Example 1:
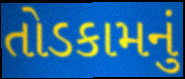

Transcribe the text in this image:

તોડકામનું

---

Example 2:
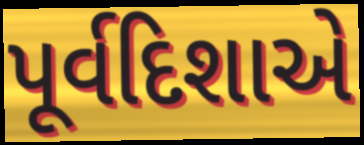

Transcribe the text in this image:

પૂર્વદિશાએ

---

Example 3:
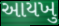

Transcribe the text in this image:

આયખુ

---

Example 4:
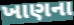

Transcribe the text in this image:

ખાણના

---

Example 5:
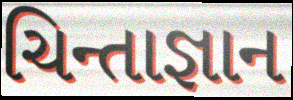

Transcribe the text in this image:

ચિન્તાજ્ઞાન